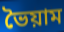
ভৈয়াম